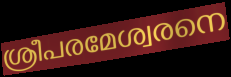
ശ്രീപരമേശ്വരനെ